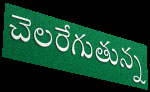
చెలరేగుతున్న